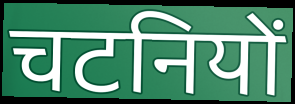
चटनियों